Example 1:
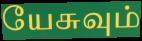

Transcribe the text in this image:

யேசுவும்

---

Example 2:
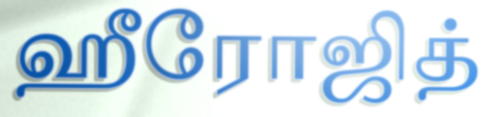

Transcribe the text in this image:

ஹீரோஜித்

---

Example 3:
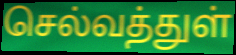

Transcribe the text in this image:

செல்வத்துள்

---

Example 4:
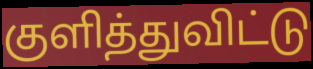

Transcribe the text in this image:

குளித்துவிட்டு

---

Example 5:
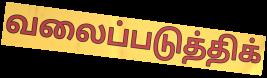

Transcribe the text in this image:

வலைப்படுத்திக்